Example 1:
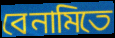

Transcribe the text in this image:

বেনামিতে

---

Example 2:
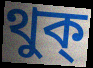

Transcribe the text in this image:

থুক্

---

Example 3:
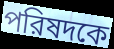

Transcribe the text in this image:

পরিষদকে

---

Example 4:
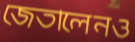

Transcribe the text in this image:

জেতালেনও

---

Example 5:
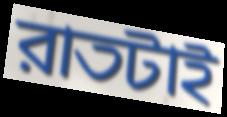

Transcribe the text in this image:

রাতটাই